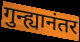
गुन्ह्यानंतर